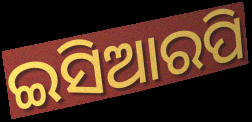
ଇସିଆରପି